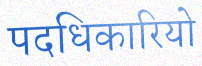
पदधिकारियो